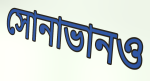
সোনাভানও